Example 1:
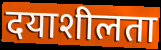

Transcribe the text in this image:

दयाशीलता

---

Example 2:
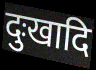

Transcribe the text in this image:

दुःखादि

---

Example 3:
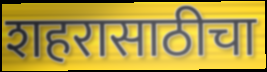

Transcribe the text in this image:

शहरासाठीचा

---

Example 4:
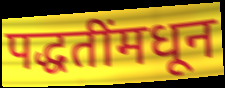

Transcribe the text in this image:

पद्धतींमधून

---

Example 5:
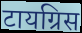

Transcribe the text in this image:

टायग्रिस